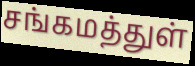
சங்கமத்துள்